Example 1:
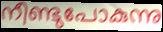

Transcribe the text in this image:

നീണ്ടുപോകുന്നു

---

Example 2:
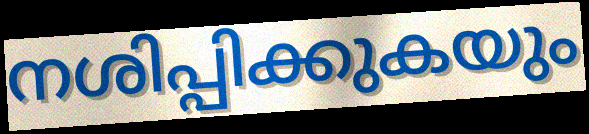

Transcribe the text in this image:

നശിപ്പിക്കുകയും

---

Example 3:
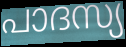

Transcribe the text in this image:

പാദസ്യ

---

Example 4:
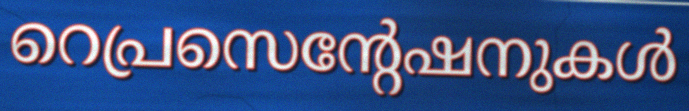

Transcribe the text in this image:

റെപ്രസെന്റേഷനുകൾ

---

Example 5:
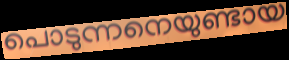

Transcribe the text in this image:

പൊടുന്നനെയുണ്ടായ